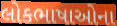
લોકભાષાઓના